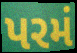
પરમં